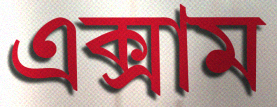
এক্সাম